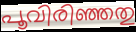
പൂവിരിഞ്ഞതു